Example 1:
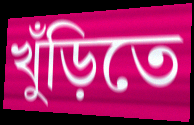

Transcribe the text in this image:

খুঁড়িতে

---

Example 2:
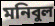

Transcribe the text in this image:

মনিবুল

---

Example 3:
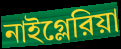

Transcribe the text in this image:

নাইগ্লেরিয়া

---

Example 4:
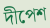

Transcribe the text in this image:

দীপেশ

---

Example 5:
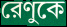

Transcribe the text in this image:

রেণুকে